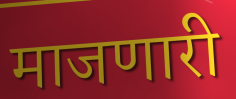
माजणारी